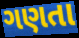
ગણતા